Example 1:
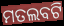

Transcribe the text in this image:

ମତଲବଟି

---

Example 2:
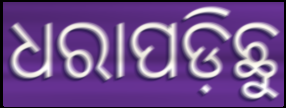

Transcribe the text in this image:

ଧରାପଡ଼ିଛୁ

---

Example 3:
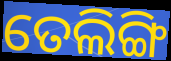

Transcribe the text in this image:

ତେଲିଙ୍ଗି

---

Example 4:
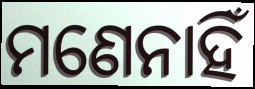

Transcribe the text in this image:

ମଣେନାହିଁ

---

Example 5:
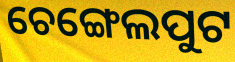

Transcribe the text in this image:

ଚେଙ୍ଗେଲପୁଟ